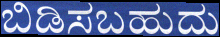
ಬಿಡಿಸಬಹುದು